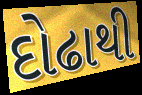
દોઢાથી